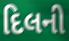
દિલની